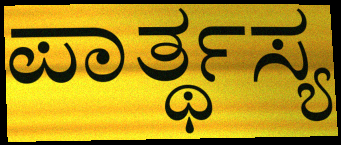
ಪಾರ್ತ್ಥಸ್ಯ